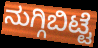
ನುಗ್ಗಿಬಿಟ್ಟೆ